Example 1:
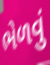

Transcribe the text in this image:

ભેળવું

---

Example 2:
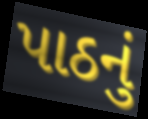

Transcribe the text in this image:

પાઠનું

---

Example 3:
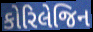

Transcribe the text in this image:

કોરિલેજિન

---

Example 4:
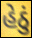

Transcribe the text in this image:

હેઠું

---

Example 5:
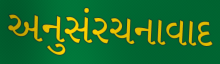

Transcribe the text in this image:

અનુસંરચનાવાદ